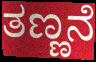
ತಣ್ಣನೆ